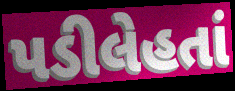
પડીલેહતાં